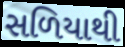
સળિયાથી